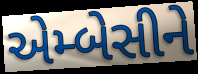
એમ્બેસીને